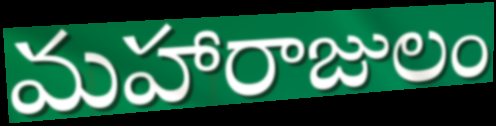
మహారాజులం